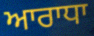
ਆਰਾਧਾ